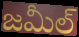
జమీల్